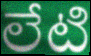
లేటి